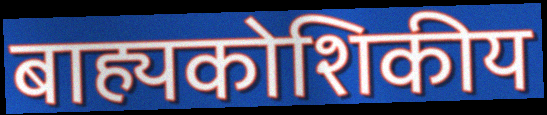
बाह्यकोशिकीय